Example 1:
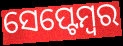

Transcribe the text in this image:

ସେପ୍ଟେମ୍ୱର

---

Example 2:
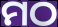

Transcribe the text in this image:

ମଠ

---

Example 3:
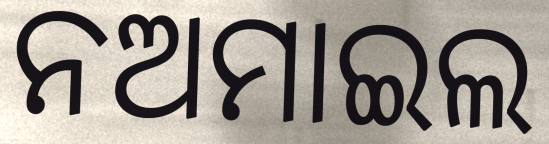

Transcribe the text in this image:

ନଅମାଇଲ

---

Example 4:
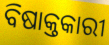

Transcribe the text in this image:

ବିଷାକ୍ତକାରୀ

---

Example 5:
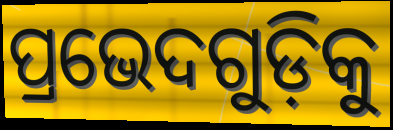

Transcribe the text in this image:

ପ୍ରଭେଦଗୁଡ଼ିକୁ